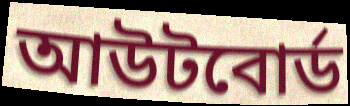
আউটবোর্ড